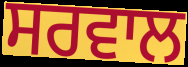
ਸਰਵਾਲ